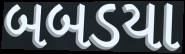
બબડયા